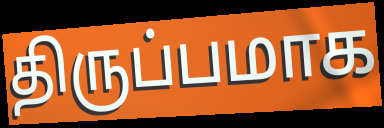
திருப்பமாக